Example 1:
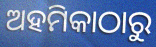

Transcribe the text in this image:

ଅହମିକାଠାରୁ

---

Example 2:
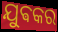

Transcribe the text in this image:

ଯୁଵକର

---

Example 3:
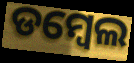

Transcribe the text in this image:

ଡମ୍ୱେଲ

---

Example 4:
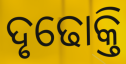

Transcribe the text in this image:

ଦୃଢୋକ୍ତି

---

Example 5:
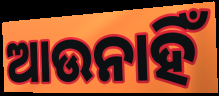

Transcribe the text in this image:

ଆଉନାହିଁ